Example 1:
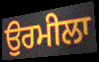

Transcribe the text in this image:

ਉਰਮੀਲਾ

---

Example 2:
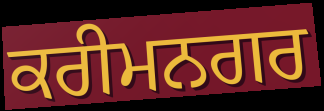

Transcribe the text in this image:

ਕਰੀਮਨਗਰ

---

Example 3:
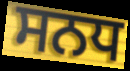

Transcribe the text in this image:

ਸਨਧ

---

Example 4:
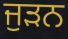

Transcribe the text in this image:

ਜੁਡ਼ਨ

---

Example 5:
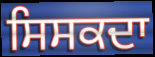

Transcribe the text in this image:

ਸਿਸਕਦਾ